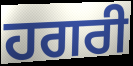
ਹਗਰੀ